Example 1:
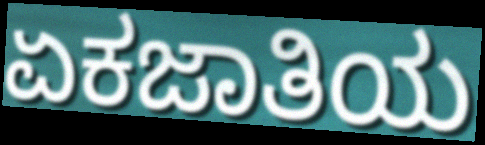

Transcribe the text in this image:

ಏಕಜಾತಿಯ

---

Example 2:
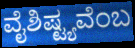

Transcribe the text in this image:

ವೈಶಿಷ್ಟ್ಯವೆಂಬ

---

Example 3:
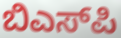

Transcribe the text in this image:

ಬಿಎಸ್‌ಪಿ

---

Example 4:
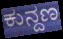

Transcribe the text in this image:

ಕುನ್ದಣ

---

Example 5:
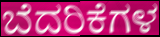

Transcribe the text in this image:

ಬೆದರಿಕೆಗಳ